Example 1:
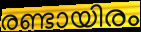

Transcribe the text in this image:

രണ്ടായിരം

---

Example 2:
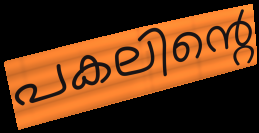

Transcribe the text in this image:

പകലിന്റെ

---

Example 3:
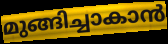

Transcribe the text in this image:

മുങ്ങിച്ചാകാൻ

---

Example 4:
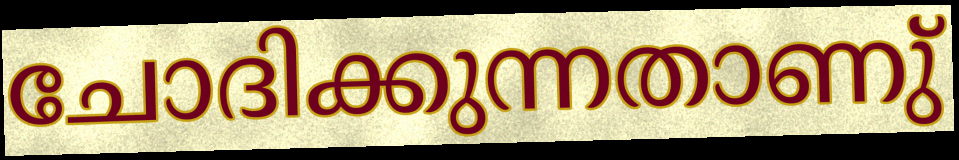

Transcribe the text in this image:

ചോദിക്കുന്നതാണു്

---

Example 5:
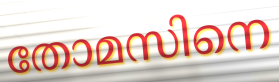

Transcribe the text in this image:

തോമസിനെ